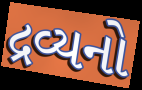
દ્રવ્યનો